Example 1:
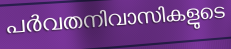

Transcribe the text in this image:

പർവതനിവാസികളുടെ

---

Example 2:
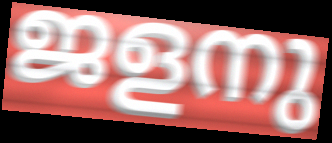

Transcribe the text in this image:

ജളനു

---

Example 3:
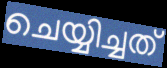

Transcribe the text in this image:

ചെയ്യിച്ചത്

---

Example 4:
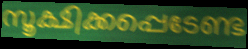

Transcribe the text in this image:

സൂക്ഷിക്കപ്പെടേണ്ട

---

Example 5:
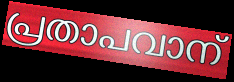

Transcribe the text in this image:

പ്രതാപവാന്